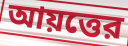
আয়ত্তের